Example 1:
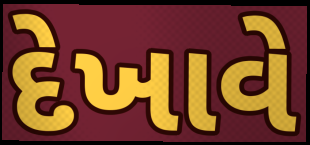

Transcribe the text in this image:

દેખાવે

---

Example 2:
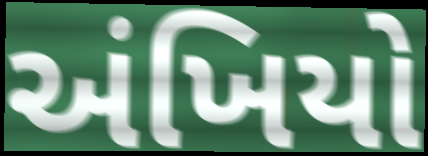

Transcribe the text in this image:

અંખિયો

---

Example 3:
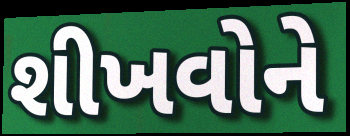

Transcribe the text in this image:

શીખવોને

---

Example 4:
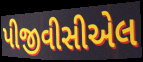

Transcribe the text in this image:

પીજીવીસીએલ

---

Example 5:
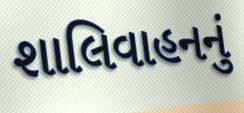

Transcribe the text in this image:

શાલિવાહનનું